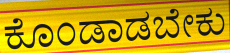
ಕೊಂಡಾಡಬೇಕು